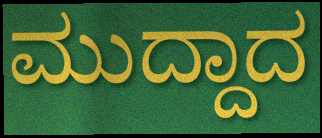
ಮುದ್ದಾದ